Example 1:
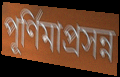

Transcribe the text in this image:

পূর্ণিমাপ্রসন্ন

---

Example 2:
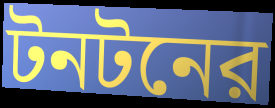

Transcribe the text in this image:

টনটনের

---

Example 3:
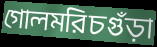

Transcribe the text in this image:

গোলমরিচগুঁড়া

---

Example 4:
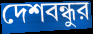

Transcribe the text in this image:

দেশবন্ধুর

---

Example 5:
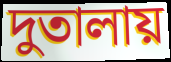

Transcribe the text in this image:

দুতালায়